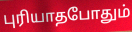
புரியாதபோதும்